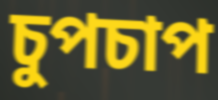
চুপচাপ